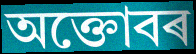
অক্তোবৰ